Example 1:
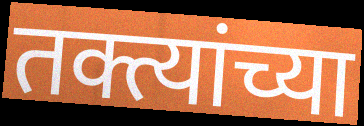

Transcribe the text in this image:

तक्त्यांच्या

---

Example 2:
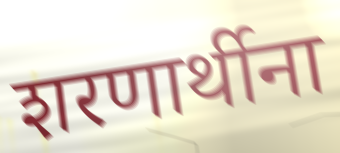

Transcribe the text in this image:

शरणार्थीना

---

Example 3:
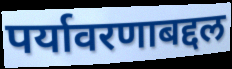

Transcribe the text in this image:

पर्यावरणाबद्दल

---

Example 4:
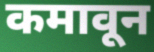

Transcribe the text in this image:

कमावून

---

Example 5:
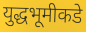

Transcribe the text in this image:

युद्धभूमीकडे